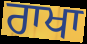
ਰਾਖਾ